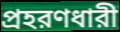
প্রহরণধারী